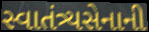
સ્વાતંત્ર્યસેનાની